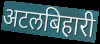
अटलबिहारी